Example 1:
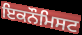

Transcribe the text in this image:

ਇਕਨੌਮਿਸਟ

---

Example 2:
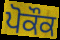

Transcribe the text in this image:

ਪੋਕੌਕ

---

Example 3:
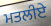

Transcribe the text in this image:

ਮਤਲੀਏ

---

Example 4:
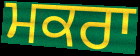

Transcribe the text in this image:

ਮਕਰਾ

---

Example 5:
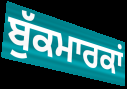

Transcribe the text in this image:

ਬੁੱਕਮਾਰਕਾਂ